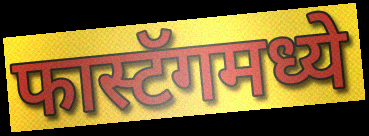
फास्टॅगमध्ये